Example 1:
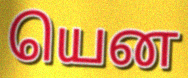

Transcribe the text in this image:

யென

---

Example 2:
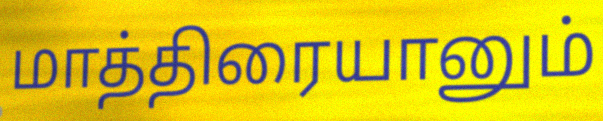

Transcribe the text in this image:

மாத்திரையானும்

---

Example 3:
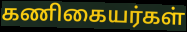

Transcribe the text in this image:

கணிகையர்கள்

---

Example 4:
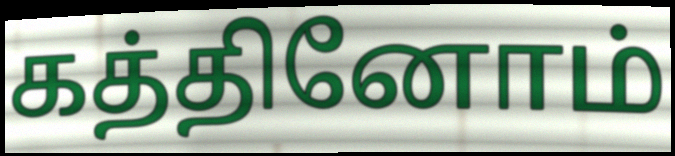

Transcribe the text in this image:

கத்தினோம்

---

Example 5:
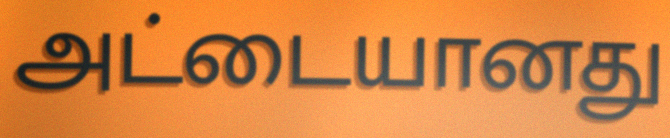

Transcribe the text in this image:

அட்டையானது